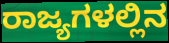
ರಾಜ್ಯಗಳಲ್ಲಿನ